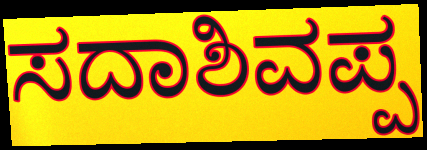
ಸದಾಶಿವಪ್ಪ